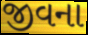
જીવના